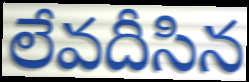
లేవదీసిన